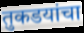
तुकडयांचा